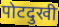
पोटदुखी